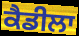
ਕੈਡੀਲਾ